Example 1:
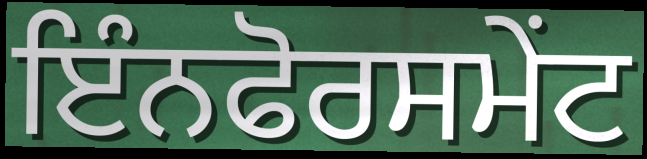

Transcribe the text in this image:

ਇੰਨਫੋਰਸਮੇਂਟ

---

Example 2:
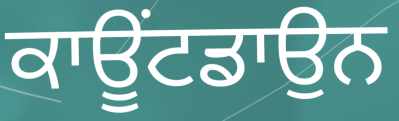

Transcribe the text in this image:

ਕਾਊਂਟਡਾਉਨ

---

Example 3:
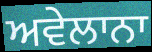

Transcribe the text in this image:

ਅਵੇਲਾਨਾ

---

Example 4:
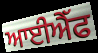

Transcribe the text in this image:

ਆਈਐੱਫ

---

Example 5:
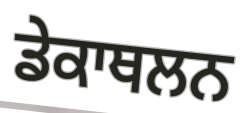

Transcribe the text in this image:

ਡੇਕਾਥਲਨ